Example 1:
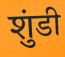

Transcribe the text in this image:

शुंडी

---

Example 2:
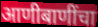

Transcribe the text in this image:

आणीबाणींचा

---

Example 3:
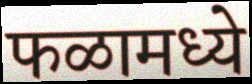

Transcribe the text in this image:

फळामध्ये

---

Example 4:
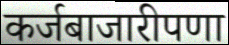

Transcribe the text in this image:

कर्जबाजारीपणा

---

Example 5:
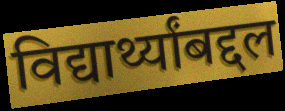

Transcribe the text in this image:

विद्यार्थ्यांबद्दल